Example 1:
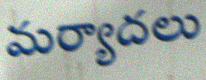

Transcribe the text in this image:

మర్యాదలు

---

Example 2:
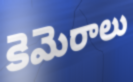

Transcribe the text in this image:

కెమెరాలు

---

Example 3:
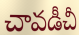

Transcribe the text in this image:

చావడీచీ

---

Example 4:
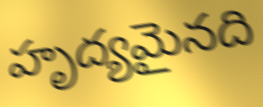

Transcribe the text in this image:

హృద్యమైనది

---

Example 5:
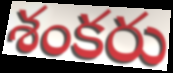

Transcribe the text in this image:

శంకరు